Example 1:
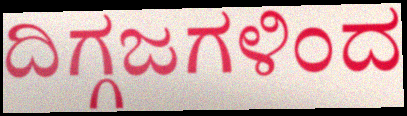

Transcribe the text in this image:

ದಿಗ್ಗಜಗಳಿಂದ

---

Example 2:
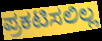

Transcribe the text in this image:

ಪ್ರಕಟಿಸಲಿಲ್ಲ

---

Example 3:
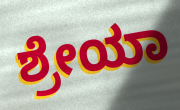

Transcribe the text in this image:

ಶ್ರೇಯಾ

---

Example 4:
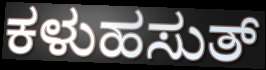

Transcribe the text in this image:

ಕಳುಹಸುತ್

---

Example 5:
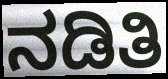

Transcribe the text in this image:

ನಡಿತಿ